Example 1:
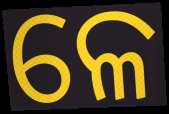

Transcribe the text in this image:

ଳେ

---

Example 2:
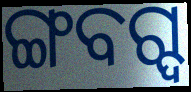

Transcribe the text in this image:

ଙ୍ଗବଗ୍ଦ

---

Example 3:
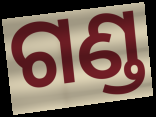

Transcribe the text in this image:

ଗଣ୍ଡ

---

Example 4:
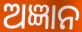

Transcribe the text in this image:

ଅଜ୍ଞାନ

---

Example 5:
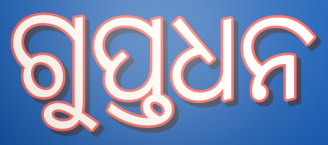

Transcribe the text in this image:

ଗୁପ୍ତଧନ